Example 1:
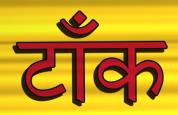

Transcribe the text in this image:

टॉंक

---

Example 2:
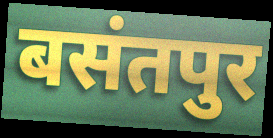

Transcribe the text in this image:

बसंतपुर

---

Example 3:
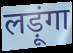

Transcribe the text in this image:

लड़ूंगा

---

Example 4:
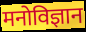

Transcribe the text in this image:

मनोविज्ञान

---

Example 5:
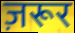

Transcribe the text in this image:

ज़रूर